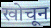
खोचून